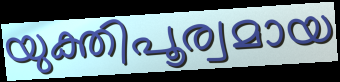
യുക്തിപൂര്വമായ